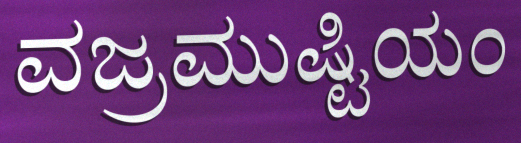
ವಜ್ರಮುಷ್ಟಿಯಂ